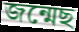
জন্মেছ